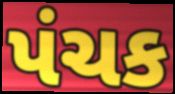
પંચક